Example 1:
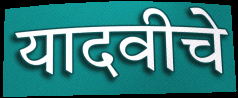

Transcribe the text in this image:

यादवीचे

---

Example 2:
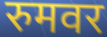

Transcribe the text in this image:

रुमवर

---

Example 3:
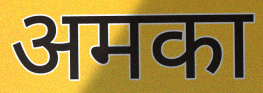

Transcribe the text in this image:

अमका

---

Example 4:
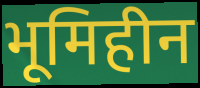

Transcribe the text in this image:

भूमिहीन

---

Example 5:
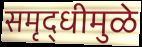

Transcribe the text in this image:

समृद्धीमुळे